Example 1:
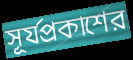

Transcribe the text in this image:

সূর্যপ্রকাশের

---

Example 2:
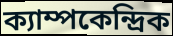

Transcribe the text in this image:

ক্যাম্পকেন্দ্রিক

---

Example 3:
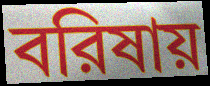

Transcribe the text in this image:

বরিষায়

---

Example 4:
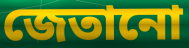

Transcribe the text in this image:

জেতানো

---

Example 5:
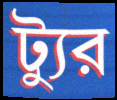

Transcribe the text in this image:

ট্যুর